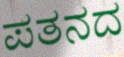
ಪತನದ